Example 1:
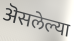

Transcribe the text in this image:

ऄसलेल्या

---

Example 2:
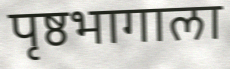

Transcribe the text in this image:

पृष्ठभागाला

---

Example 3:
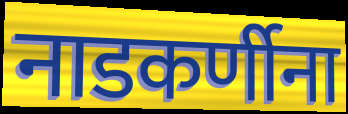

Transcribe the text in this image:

नाडकर्णीना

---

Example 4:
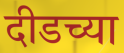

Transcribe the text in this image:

दीडच्या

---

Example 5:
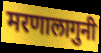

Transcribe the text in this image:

मरणालागुनी